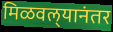
मिळवल्यानंतर